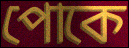
পোকে